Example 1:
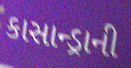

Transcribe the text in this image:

કાસાન્ડ્રાની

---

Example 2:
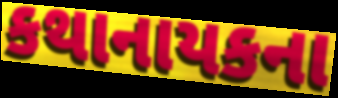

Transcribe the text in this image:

કથાનાયકના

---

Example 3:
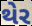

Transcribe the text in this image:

થેર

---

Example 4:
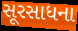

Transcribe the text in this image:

સૂરસાધના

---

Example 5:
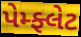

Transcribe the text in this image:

પેમ્ફ્લેટ